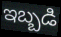
ఇబ్బడి